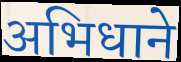
अभिधाने